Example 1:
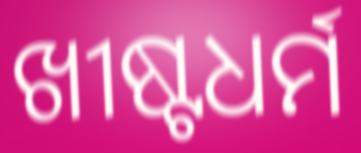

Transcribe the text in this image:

ଖୀଷ୍ଟଧର୍ମ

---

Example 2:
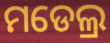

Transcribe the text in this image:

ମଡେଲ୍ର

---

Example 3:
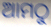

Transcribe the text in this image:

ଆମଠୁ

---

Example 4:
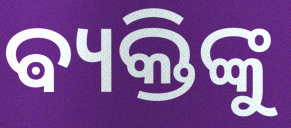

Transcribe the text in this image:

ଵ୍ୟକ୍ତିଙ୍କୁ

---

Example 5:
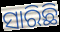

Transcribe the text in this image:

ସାରିଛି